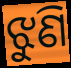
ଝୁଣି